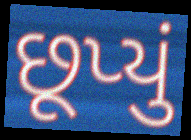
છૂપ્યું